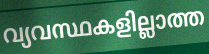
വ്യവസ്ഥകളില്ലാത്ത